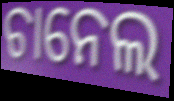
ଚାନେଲ